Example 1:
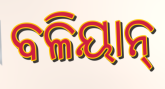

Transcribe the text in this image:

ବଳିୟାନ୍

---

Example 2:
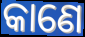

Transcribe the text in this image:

କାଣେ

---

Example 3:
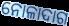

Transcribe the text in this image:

ନୋଳାଦାଗ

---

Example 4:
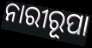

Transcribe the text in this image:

ନାରୀରୂପା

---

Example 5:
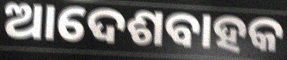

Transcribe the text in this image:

ଆଦେଶବାହକ